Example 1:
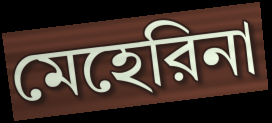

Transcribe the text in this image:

মেহেরিনা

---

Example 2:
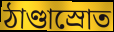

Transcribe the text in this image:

ঠাণ্ডাস্রোত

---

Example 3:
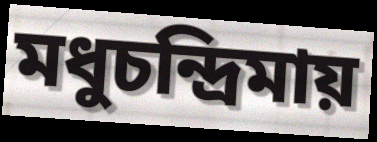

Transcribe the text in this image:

মধুচন্দ্রিমায়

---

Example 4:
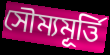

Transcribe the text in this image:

সৌম্যমূর্ত্তি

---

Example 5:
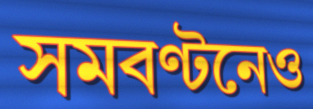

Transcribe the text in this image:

সমবণ্টনেও